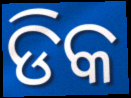
ଡିକ